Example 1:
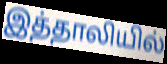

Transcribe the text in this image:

இத்தாலியில்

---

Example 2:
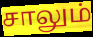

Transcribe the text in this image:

சாலும்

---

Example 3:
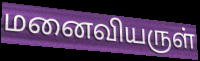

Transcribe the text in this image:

மனைவியருள்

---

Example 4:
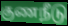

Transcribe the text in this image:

குணநீடு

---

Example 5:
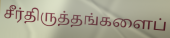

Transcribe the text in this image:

சீர்திருத்தங்களைப்